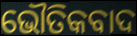
ଭୌତିକବାଦ